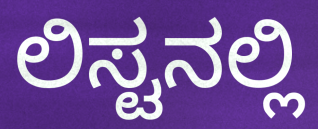
ಲಿಸ್ಟನಲ್ಲಿ